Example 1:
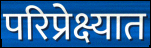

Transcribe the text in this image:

परिप्रेक्ष्यात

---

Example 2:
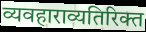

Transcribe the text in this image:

व्यवहाराव्यतिरिक्त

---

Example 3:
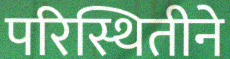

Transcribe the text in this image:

परिस्थितीने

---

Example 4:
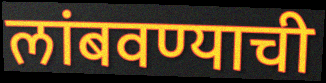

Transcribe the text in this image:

लांबवण्याची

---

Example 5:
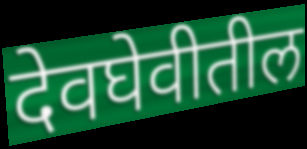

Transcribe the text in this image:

देवघेवीतील